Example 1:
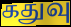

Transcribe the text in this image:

கதுவு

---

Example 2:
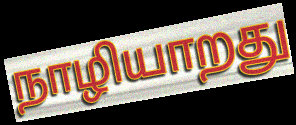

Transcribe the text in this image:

நாழியாறது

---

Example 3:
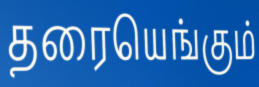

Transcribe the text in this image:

தரையெங்கும்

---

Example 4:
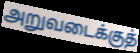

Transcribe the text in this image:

அறுவடைக்குத்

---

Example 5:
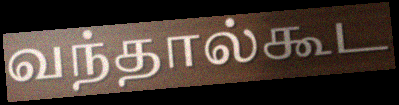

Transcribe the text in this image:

வந்தால்கூட